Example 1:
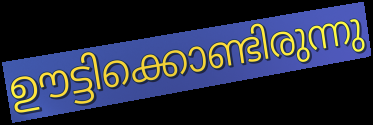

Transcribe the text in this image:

ഊട്ടിക്കൊണ്ടിരുന്നു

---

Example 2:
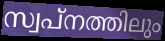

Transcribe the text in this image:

സ്വപ്നത്തിലും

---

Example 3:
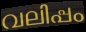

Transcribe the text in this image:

വലിപ്പം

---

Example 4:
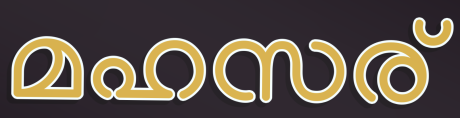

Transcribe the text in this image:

മഹസര്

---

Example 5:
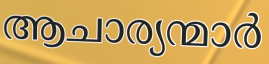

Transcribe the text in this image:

ആചാര്യന്മാർ